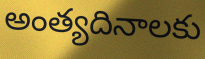
అంత్యదినాలకు